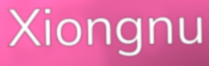
Xiongnu